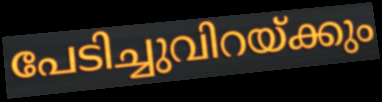
പേടിച്ചുവിറയ്ക്കും